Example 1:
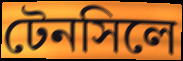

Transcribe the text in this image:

টেনসিলে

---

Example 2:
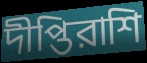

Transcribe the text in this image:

দীপ্তিরাশি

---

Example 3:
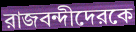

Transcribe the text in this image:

রাজবন্দীদেরকে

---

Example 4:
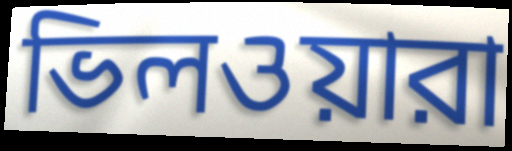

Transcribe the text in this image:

ভিলওয়ারা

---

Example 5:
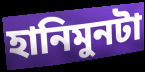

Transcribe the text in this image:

হানিমুনটা